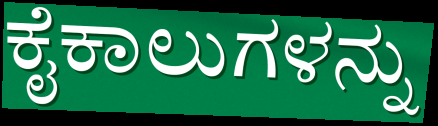
ಕೈಕಾಲುಗಳನ್ನು